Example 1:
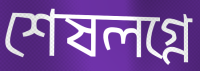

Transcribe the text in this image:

শেষলগ্নে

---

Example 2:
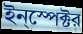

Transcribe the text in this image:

ইন্‌স্পেক্টর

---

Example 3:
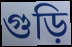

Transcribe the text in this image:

গুড়ি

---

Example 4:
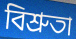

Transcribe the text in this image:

বিশ্রুতা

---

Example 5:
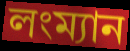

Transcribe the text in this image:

লংম্যান